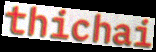
thichai